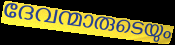
ദേവന്മാരുടെയും